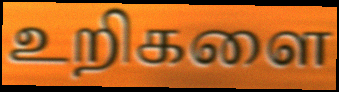
உறிகளை